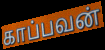
காப்பவன்